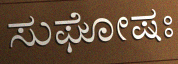
ಸುಘೋಷಃ